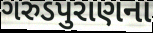
ગરુડપુરાણના